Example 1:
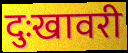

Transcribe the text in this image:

दुःखावरी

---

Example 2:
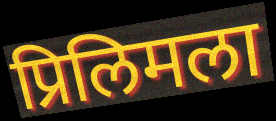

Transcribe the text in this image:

प्रिलिमला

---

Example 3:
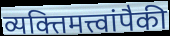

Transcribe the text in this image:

व्यक्तिमत्त्वांपैकी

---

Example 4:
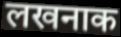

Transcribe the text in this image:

लखनाक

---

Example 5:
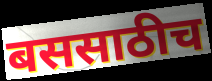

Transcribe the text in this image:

बससाठीच